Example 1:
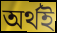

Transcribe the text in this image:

অৰ্থই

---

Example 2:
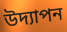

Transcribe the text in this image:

উদ্যাপন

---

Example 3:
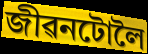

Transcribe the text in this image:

জীৱনটোলৈ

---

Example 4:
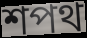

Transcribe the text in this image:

শপথ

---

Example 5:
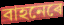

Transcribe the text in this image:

বাহনেৰে